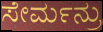
ಸೇರ್ಮನ್ರು